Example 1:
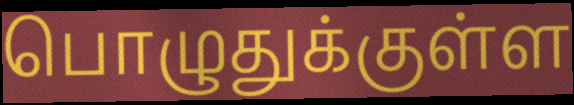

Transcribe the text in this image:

பொழுதுக்குள்ள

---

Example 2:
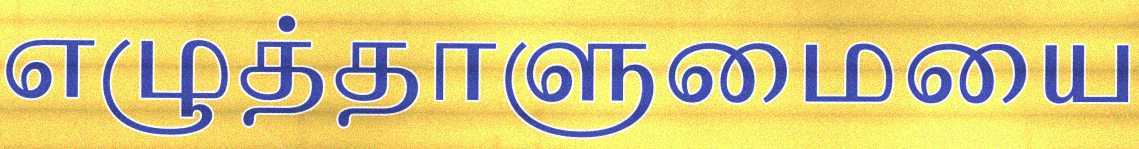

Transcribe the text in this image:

எழுத்தாளுமையை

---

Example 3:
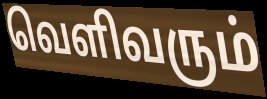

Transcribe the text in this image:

வெளிவரும்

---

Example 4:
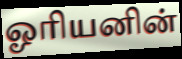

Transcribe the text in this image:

ஓரியனின்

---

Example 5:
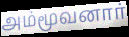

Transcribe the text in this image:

அம்மூவனார்